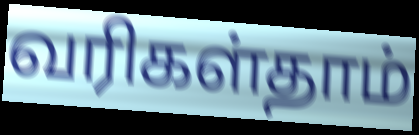
வரிகள்தாம்